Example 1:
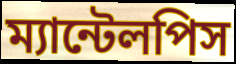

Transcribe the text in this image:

ম্যান্টেলপিস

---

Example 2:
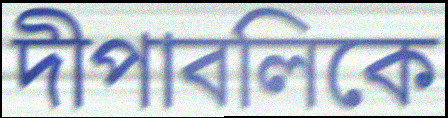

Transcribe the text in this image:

দীপাবলিকে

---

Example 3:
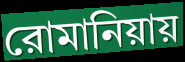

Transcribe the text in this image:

রোমানিয়ায়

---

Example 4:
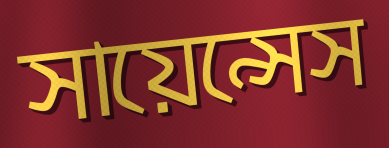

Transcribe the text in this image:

সায়েন্সেস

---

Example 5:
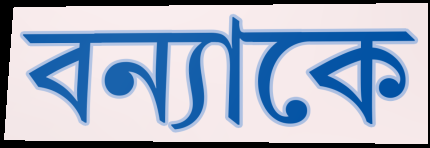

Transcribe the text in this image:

বন্যাকে